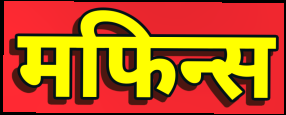
मफिन्स